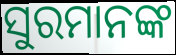
ସୁରମାନଙ୍କ